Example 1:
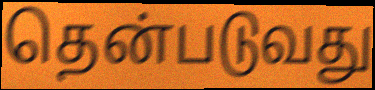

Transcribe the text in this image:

தென்படுவது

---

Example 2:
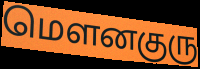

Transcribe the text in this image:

மௌனகுரு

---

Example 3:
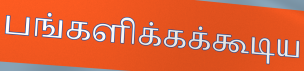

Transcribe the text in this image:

பங்களிக்கக்கூடிய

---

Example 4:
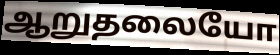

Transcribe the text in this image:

ஆறுதலையோ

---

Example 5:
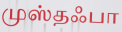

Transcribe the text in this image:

முஸ்தஃபா